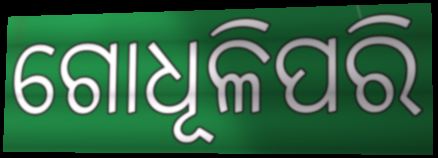
ଗୋଧୂଳିପରି